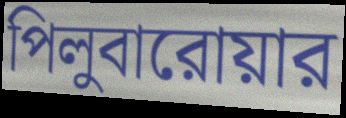
পিলুবারোয়ার